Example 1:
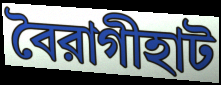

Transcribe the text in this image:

বৈরাগীহাট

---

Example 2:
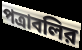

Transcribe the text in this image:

পত্রাবলির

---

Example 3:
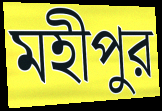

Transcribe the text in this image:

মহীপুর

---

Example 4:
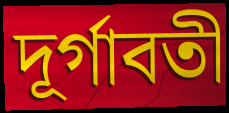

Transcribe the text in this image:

দূর্গাবতী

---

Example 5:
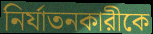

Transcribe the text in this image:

নির্যাতনকারীকে